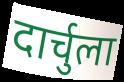
दार्चुला